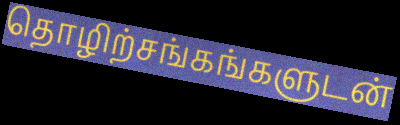
தொழிற்சங்கங்களுடன்